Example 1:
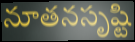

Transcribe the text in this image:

నూతనసృష్టి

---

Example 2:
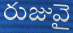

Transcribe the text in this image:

రుజువై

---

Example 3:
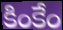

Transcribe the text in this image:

కింకేం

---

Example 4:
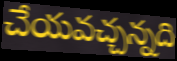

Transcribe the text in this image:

చేయవచ్చన్నది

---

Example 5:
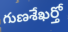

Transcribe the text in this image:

గుణశేఖర్తో